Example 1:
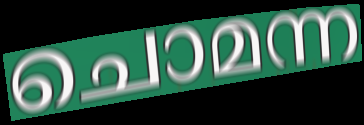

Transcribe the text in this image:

ചൊമന്ന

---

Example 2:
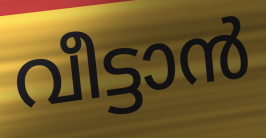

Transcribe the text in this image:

വീട്ടാൻ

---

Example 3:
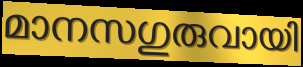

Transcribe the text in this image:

മാനസഗുരുവായി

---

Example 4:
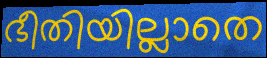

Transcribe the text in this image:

ഭീതിയില്ലാതെ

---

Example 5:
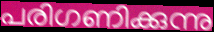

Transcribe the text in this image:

പരിഗണിക്കുന്നു